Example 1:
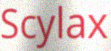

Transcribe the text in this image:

Scylax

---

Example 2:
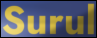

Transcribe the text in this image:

Surul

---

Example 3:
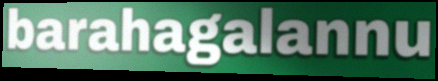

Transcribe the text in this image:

barahagalannu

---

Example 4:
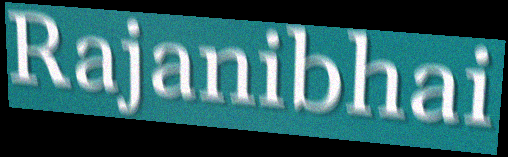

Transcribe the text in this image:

Rajanibhai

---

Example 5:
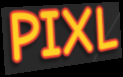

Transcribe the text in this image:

PIXL